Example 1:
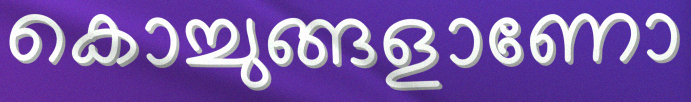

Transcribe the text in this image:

കൊച്ചുങ്ങളാണോ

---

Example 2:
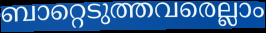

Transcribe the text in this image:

ബാറ്റെടുത്തവരെല്ലാം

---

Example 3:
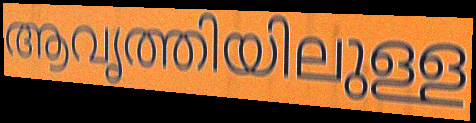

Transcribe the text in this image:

ആവൃത്തിയിലുള്ള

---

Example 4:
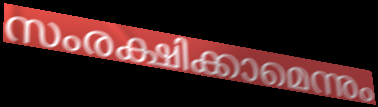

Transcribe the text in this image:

സംരക്ഷിക്കാമെന്നും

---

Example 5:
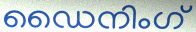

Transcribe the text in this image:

ഡൈനിംഗ്